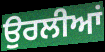
ਉਰਲੀਆਂ